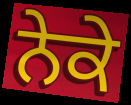
ਨੇਕੇ